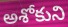
అశోకుని